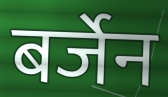
बर्जेन